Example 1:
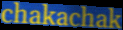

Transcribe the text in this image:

chakachak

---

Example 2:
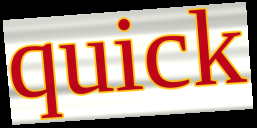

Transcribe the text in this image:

quick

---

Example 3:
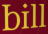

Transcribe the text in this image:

bill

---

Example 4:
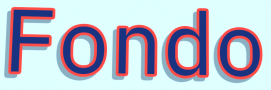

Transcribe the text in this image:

Fondo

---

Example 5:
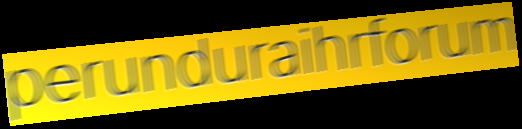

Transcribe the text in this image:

perunduraihrforum